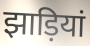
झाड़ियां